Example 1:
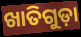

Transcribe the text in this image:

ଖାତିଗୁଡ଼ା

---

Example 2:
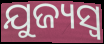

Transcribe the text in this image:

ଯୁଜ୍ୟସ୍ୱ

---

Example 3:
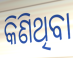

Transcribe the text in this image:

କିଣିଥିବା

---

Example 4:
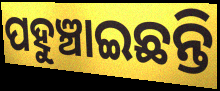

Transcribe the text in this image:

ପହୁଞ୍ଚାଇଛନ୍ତି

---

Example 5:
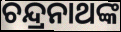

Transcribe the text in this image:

ଚନ୍ଦ୍ରନାଥଙ୍କ